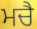
ਮਚੈ